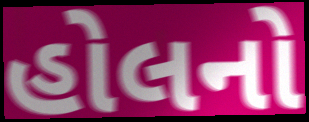
હોલનો